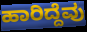
ಹಾರಿದ್ದೆವು